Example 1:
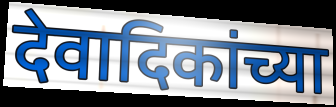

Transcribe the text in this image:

देवादिकांच्या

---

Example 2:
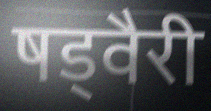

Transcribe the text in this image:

षड्वैरी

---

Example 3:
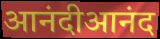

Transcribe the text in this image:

आनंदीआनंद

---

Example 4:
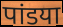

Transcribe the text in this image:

पांडया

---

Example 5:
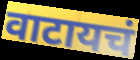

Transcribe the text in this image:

वाटायचं